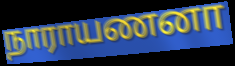
நாராயணனா